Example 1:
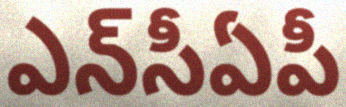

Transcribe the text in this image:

ఎన్‌సీఏపీ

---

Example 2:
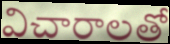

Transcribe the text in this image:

విచారాలతో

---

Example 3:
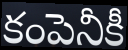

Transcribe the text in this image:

కంపెనీకీ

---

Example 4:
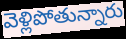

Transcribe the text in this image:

వెళ్లిపోతున్నారు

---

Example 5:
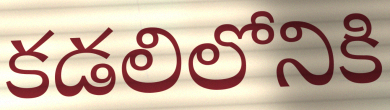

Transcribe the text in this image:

కడలిలోనికి